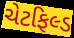
ચેટફિલ્ડ